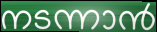
നടന്നാൻ